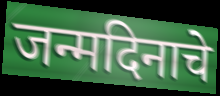
जन्मदिनाचे